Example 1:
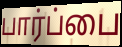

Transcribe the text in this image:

பார்ப்பை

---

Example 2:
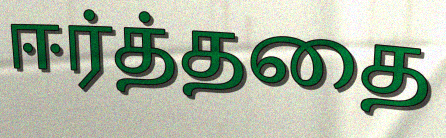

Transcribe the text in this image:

ஈர்த்ததை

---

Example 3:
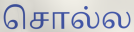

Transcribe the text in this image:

சொல்ல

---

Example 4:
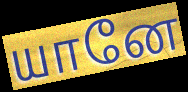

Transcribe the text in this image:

யானே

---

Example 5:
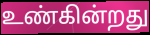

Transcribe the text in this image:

உண்கின்றது